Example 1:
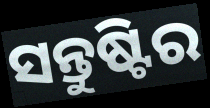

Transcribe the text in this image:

ସନ୍ତୁଷ୍ଟିର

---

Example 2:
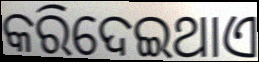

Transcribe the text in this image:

କରିଦେଇଥାଏ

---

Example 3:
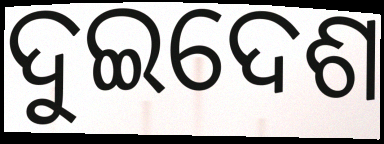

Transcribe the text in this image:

ଦୁଇଦେଶ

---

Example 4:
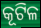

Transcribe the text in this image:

କୂଟିଳ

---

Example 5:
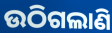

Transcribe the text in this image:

ଉଠିଗଲାଣି